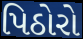
પિઠોરો